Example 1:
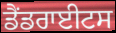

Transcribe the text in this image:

ਡੈਂਡਰਾਈਟਸ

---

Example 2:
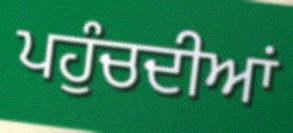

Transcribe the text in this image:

ਪਹੁੰਚਦੀਆਂ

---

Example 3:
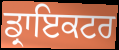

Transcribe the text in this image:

ਡ੍ਰਾਇਕਟਰ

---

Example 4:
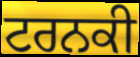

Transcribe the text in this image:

ਟਰਨਕੀ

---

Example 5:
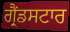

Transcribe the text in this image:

ਗ੍ਰੈਂਡਸਟਾਰ